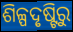
ଶିଳ୍ପଦୃଷ୍ଟିରୁ